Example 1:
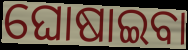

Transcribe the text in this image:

ଘୋଷାଇବା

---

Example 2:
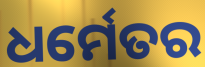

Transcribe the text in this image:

ଧର୍ମେତର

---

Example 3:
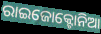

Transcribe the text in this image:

ରାଇଜୋକ୍ଟୋନିଆ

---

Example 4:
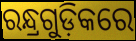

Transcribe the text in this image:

ରନ୍ଧ୍ରଗୁଡ଼ିକରେ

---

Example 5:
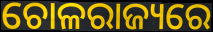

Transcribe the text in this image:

ଚୋଳରାଜ୍ୟରେ